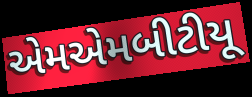
એમએમબીટીયૂ